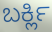
ಬರ್ಕ್ಲಿ